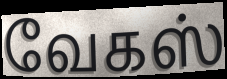
வேகஸ்